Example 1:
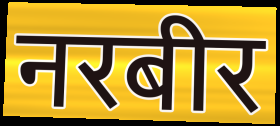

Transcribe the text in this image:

नरबीर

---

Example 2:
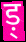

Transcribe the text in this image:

ड़्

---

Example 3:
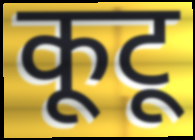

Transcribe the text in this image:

कूटू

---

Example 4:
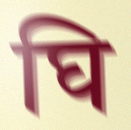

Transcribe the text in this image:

घि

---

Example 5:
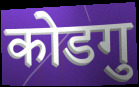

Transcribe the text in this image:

कोडगु